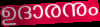
ഉദാരനും